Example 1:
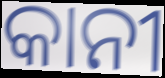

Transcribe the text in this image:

କାନୀ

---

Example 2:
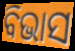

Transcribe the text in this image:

ବିଭାସ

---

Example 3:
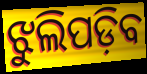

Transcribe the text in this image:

ଝୁଲିପଡ଼ିବ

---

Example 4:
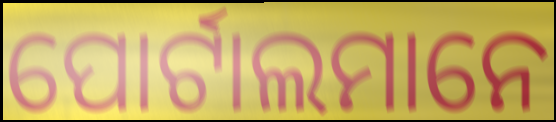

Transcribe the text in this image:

ପୋର୍ଟାଲମାନେ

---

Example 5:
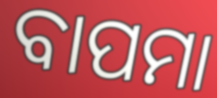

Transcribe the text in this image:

ବାପମା